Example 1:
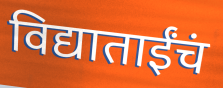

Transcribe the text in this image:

विद्याताईंचं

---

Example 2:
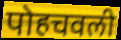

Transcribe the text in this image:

पोहचवली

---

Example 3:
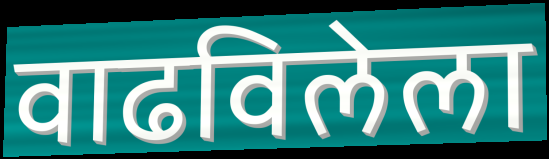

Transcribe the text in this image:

वाढविलेला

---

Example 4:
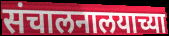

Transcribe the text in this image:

संचालनालयाच्या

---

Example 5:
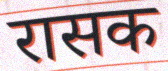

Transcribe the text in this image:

रासक